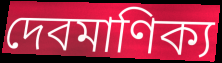
দেবমাণিক্য